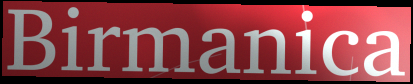
Birmanica